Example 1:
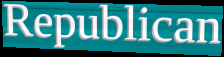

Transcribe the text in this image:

Republican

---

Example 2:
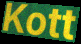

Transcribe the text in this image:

Kott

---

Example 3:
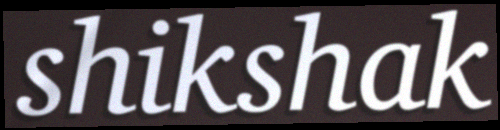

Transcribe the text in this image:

shikshak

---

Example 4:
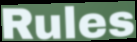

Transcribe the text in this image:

Rules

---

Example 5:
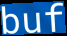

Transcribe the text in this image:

buf